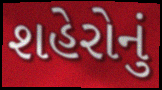
શહેરોનું